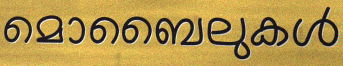
മൊബൈലുകൾ